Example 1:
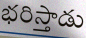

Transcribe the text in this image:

భరిస్తాడు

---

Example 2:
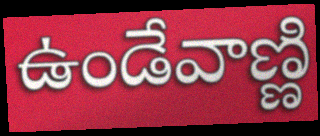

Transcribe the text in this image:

ఉండేవాణ్ణి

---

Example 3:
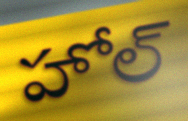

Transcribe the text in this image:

హోల్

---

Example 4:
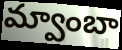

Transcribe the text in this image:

మ్వాంబా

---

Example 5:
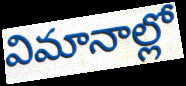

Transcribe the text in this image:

విమానాల్లో